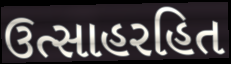
ઉત્સાહરહિત